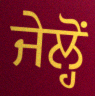
ਜੇਲ੍ਹੋਂ